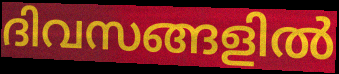
ദിവസങ്ങളിൽ